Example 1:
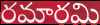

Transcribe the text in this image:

రమారమి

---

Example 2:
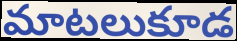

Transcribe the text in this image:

మాటలుకూడ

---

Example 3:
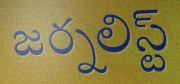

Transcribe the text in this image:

జర్నలిస్ట్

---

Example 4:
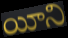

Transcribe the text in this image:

యీని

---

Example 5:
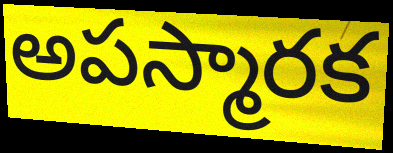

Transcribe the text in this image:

అపస్మారక